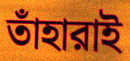
তাঁহারাই